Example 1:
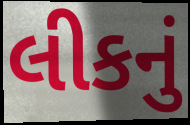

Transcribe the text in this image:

લીકનું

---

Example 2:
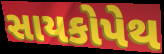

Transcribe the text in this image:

સાયકોપેથ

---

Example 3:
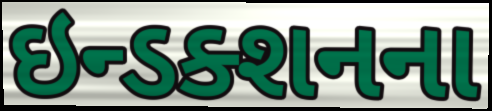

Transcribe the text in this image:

ઇન્ડક્શનના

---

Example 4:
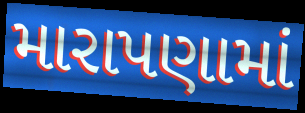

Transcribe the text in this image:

મારાપણામાં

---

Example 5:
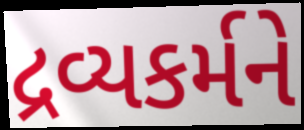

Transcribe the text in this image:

દ્રવ્યકર્મને